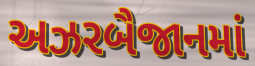
અઝરબૈજાનમાં